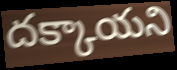
దక్కాయని